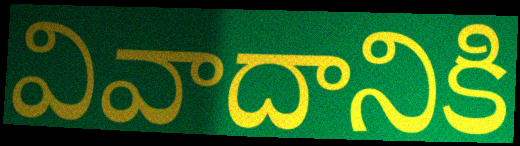
వివాదానికి